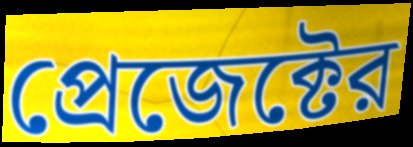
প্রেজেক্টের